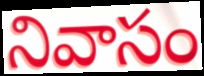
నివాసం